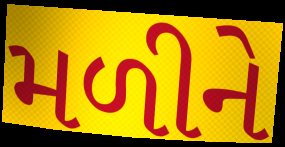
મળીને